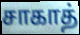
சாகாத்